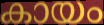
കായം